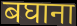
बघाना